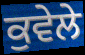
ਕੁਵੇਲੇ